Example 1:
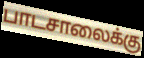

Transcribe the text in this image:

பாடசாலைக்கு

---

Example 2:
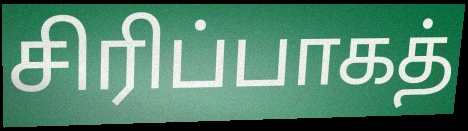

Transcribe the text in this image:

சிரிப்பாகத்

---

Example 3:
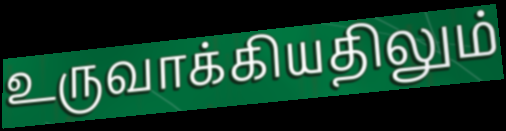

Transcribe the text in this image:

உருவாக்கியதிலும்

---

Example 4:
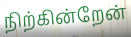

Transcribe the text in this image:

நிற்கின்றேன்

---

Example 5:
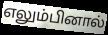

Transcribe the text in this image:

எலும்பினால்